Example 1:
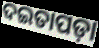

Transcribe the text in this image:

ଦଇତାପଡ଼ା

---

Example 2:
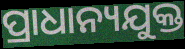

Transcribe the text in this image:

ପ୍ରାଧାନ୍ୟଯୁକ୍ତ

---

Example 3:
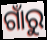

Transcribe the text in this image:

ଗାଁରୁ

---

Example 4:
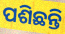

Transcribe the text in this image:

ପଶିଛନ୍ତି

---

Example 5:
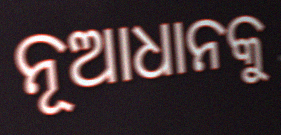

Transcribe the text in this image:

ନୂଆଧାନକୁ